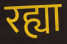
रह्या